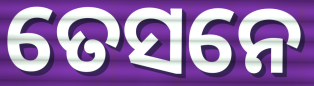
ତେସନେ